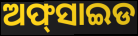
ଅଫ୍‍ସାଇଡ